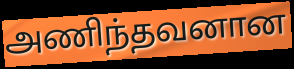
அணிந்தவனான